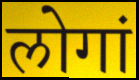
लोगां